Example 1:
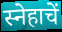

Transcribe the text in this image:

स्नेहाचें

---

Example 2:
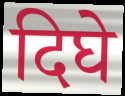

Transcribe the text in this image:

दिघे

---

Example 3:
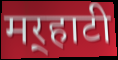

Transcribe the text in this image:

मर्हाटी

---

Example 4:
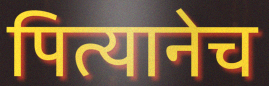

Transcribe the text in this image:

पित्यानेच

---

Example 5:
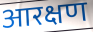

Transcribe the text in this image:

आरक्षण